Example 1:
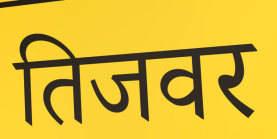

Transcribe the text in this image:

तिजवर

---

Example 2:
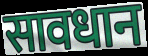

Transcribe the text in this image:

सावधान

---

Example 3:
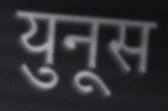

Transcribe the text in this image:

युनूस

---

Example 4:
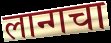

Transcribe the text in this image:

लान्गचा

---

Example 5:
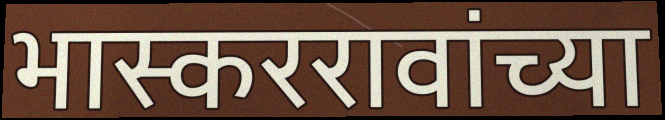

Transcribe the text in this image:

भास्कररावांच्या